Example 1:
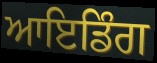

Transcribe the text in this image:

ਆਇਡਿੰਗ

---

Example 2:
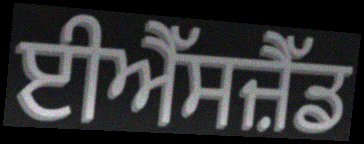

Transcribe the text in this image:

ਈਐੱਸਜ਼ੈੱਡ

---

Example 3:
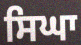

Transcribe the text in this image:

ਸਿਘਾ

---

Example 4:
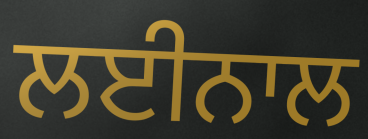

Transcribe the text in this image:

ਲਈਨਾਲ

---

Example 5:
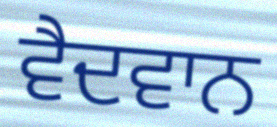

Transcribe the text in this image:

ਵੈਦਵਾਨ